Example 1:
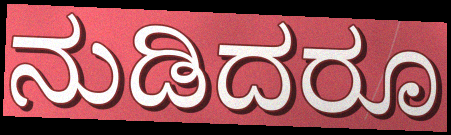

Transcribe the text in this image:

ನುಡಿದರೂ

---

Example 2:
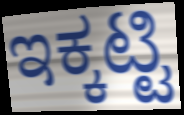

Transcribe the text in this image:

ಇಕ್ಕಟ್ಟಿ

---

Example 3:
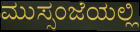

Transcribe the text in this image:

ಮುಸ್ಸಂಜೆಯಲ್ಲಿ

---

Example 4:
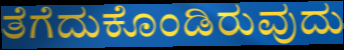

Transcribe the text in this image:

ತೆಗೆದುಕೊಂಡಿರುವುದು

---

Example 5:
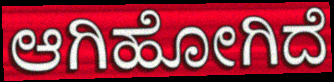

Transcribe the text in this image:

ಆಗಿಹೋಗಿದೆ